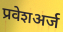
प्रवेशअर्ज